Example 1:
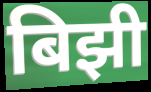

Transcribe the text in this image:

बिझी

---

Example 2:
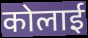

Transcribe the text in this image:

कोलाई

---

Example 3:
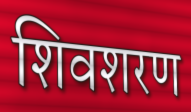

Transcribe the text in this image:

शिवशरण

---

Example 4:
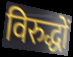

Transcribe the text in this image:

विरुद्धों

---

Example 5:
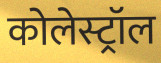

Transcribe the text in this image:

कोलेस्‍ट्रॉल